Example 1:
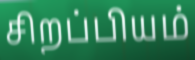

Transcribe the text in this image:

சிறப்பியம்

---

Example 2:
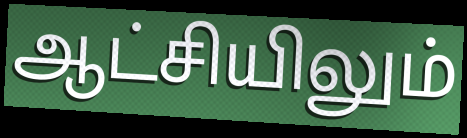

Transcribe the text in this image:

ஆட்சியிலும்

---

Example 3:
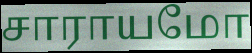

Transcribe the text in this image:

சாராயமோ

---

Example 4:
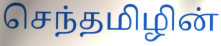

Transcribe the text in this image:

செந்தமிழின்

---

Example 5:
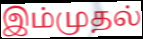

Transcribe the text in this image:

இம்முதல்